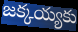
జక్కయ్యకు